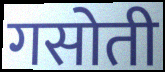
गसोती